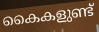
കൈകളുണ്ട്